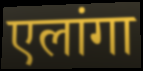
एलांगा